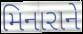
મિનારાને